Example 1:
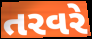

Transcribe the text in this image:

તરવરે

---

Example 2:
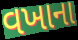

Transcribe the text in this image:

વખાના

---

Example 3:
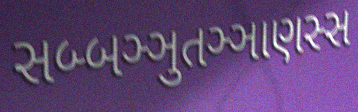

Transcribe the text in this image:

સબ્બઞ્ઞુતઞ્ઞાણસ્સ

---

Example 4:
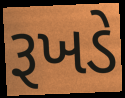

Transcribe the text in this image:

રૂખડે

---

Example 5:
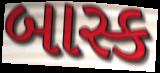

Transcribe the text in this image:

બાસ્ક